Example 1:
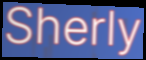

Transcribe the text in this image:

Sherly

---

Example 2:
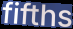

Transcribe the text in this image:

fifths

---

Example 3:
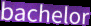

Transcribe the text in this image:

bachelor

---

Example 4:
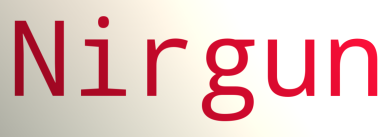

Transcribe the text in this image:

Nirgun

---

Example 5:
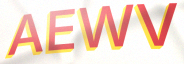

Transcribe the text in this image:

AEWV